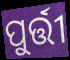
ପୁର୍ତ୍ତୀ